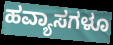
ಹವ್ಯಾಸಗಳೂ